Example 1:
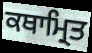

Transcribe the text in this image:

ਕਥਾਮ੍ਰਿਤ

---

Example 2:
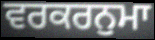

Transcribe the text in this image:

ਵਰਕਰਨੁਮਾ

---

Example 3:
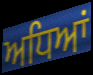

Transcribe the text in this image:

ਅਧਿਆਂ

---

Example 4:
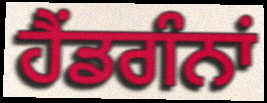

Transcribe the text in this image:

ਹੈਂਡਗੰਨਾਂ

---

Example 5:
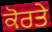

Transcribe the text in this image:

ਕੋਰਤੇ